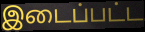
இடைப்பட்ட